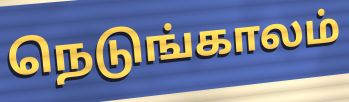
நெடுங்காலம்